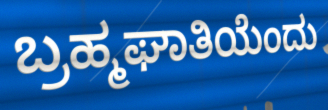
ಬ್ರಹ್ಮಘಾತಿಯೆಂದು